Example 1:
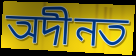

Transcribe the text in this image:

অদীনত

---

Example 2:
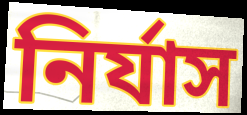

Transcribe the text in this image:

নিৰ্যাস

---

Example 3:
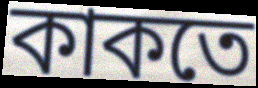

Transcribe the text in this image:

কাকতে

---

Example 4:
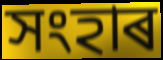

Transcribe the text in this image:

সংহাৰ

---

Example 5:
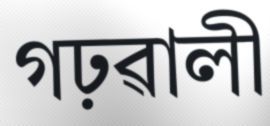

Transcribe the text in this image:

গঢ়ৱালী